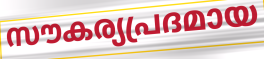
സൗകര്യപ്രദമായ